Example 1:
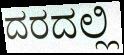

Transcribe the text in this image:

ದರದಲ್ಲಿ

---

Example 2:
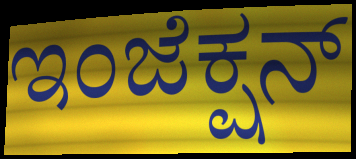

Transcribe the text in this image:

ಇಂಜೆಕ್ಷನ್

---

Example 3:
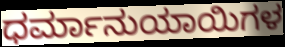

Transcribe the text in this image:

ಧರ್ಮಾನುಯಾಯಿಗಳ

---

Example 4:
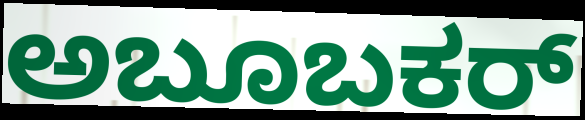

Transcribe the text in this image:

ಅಬೂಬಕರ್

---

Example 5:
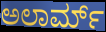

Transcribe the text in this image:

ಅಲಾರ್ಮ್